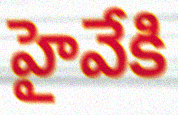
హైవేకి